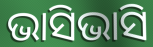
ଭାସିଭାସି